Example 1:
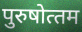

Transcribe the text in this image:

पुरुषोत्‍तम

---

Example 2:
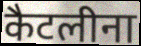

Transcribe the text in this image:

कैटलीना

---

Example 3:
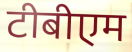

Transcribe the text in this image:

टीबीएम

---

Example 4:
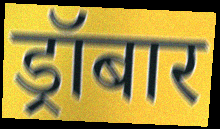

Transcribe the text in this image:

ड्रॉबार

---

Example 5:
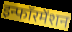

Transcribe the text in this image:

इन्फॉरमेंशन